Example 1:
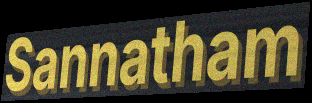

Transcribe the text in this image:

Sannatham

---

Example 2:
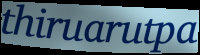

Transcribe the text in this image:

thiruarutpa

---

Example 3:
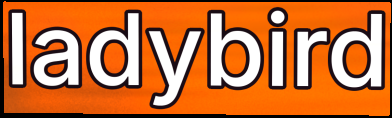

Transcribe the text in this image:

ladybird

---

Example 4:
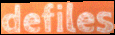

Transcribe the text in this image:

defiles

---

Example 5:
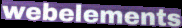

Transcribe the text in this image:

webelements